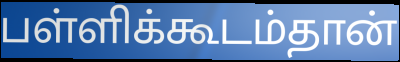
பள்ளிக்கூடம்தான்